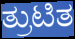
ತ್ರುಟಿತ